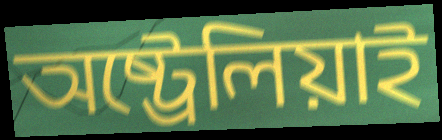
অষ্ট্ৰেলিয়াই